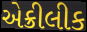
એક્રીલીક